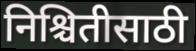
निश्चितीसाठी